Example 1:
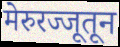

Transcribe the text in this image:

मेरुरज्जूतून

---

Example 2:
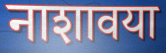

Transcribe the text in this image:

नाशावया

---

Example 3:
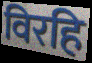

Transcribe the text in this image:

विरहि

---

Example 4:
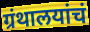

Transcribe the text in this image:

ग्रंथालयांचं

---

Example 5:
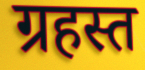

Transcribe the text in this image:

ग्रहस्त